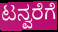
ಟನ್ವರೆಗೆ